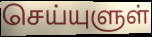
செய்யுளுள்